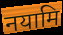
नयामि